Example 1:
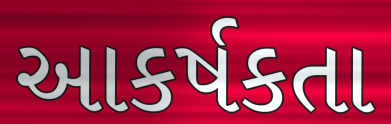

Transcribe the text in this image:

આકર્ષકતા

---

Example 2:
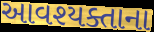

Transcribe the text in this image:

આવશ્યક્તાના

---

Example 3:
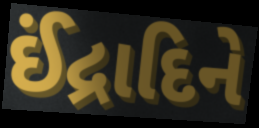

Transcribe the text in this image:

ઈંદ્રાદિને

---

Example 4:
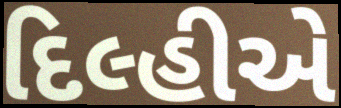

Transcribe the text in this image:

દિલ્હીએ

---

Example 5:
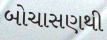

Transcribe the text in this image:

બોચાસણથી